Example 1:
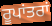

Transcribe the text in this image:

ਰੂਪਾਂਤਰਾਂ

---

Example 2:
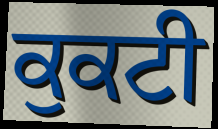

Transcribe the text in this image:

ਕੁਕਟੀ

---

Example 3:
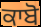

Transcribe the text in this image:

ਕਾਬੋ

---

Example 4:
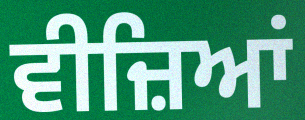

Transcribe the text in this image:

ਵੀਜ਼ਿਆਂ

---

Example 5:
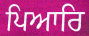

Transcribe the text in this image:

ਪਿਆਰਿ